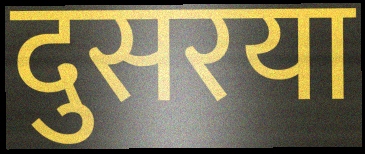
दुसरया